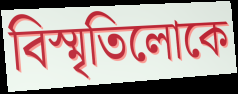
বিস্মৃতিলোকে